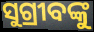
ସୁଗ୍ରୀବଙ୍କୁ